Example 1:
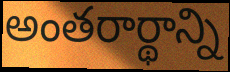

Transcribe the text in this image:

అంతరార్థాన్ని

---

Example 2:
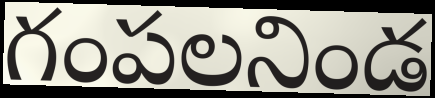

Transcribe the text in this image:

గంపలనిండ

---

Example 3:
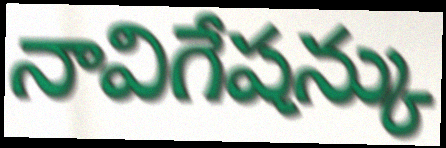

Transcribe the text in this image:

నావిగేషన్కు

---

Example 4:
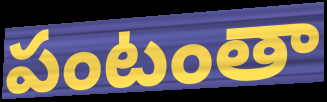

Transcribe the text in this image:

పంటంతా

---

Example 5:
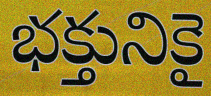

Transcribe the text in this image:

భక్తునికై